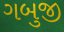
ગબુજી